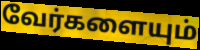
வேர்களையும்